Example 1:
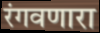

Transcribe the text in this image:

रंगवणारा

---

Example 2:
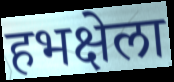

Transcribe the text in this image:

हभक्षेला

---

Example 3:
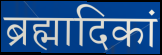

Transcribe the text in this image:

ब्रह्मादिकां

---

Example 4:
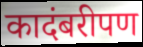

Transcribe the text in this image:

कादंबरीपण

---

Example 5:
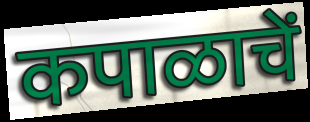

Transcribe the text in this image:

कपाळाचें